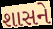
શાસને